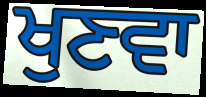
ਖੁਣਵਾ